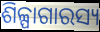
ଶିଳ୍ପାଗାରସ୍ୟ